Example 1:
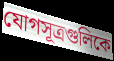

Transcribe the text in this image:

যোগসূত্রগুলিকে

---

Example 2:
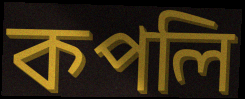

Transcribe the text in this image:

কপলি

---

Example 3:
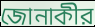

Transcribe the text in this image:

জোনাকীর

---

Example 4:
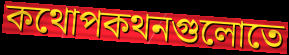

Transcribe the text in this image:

কথোপকথনগুলোতে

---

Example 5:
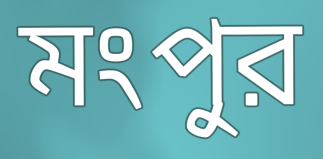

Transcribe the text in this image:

মংপুর